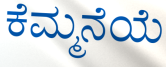
ಕೆಮ್ಮನೆಯೆ